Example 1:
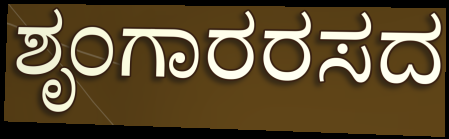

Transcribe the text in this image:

ಶೃಂಗಾರರಸದ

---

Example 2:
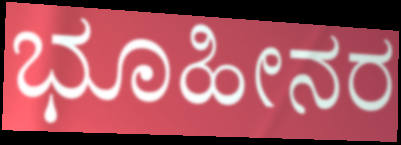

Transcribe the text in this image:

ಭೂಹೀನರ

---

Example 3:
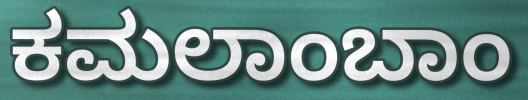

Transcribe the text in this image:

ಕಮಲಾಂಬಾಂ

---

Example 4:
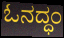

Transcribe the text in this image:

ಓನದ್ಧಂ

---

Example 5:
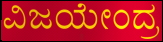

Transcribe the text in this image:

ವಿಜಯೇಂದ್ರ